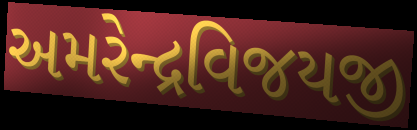
અમરેન્દ્રવિજયજી